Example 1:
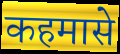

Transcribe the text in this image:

कहमासे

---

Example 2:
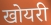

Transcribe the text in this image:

खोयरी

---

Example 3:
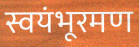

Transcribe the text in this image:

स्वयंभूरमण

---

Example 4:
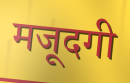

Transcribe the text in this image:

मजूदगी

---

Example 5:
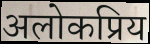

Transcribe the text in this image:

अलोकप्रिय